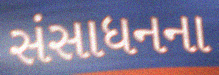
સંસાધનના